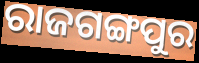
ରାଜଗଙ୍ଗପୁର